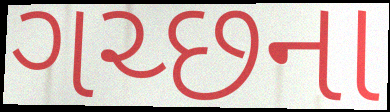
ગચ્છના